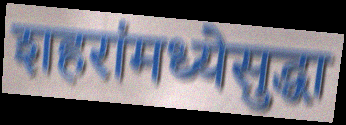
शहरांमध्येसुद्धा